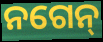
ନଗେନ୍